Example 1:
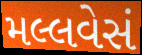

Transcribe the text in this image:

મલ્લવેસં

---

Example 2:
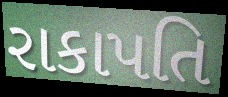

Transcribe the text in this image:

રાકાપતિ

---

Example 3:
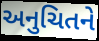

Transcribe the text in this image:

અનુચિતને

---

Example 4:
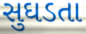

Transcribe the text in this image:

સુઘડતા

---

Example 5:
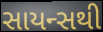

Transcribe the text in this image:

સાયન્સથી